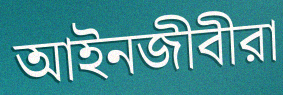
আইনজীবীরা